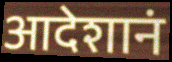
आदेशानं